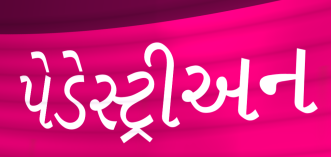
પેડેસ્ટ્રીઅન